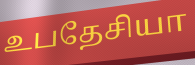
உபதேசியா